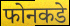
फोनकडे